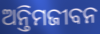
ଅନ୍ତିମଜୀବନ